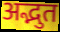
अद्भुत